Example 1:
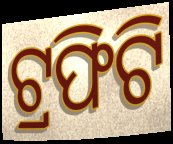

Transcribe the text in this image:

ଟ୍ରଫିଟି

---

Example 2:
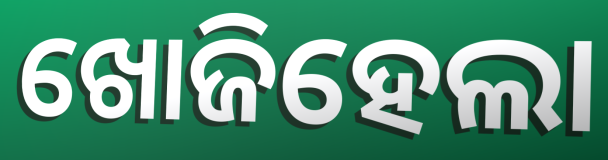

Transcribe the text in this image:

ଖୋଜିହେଲା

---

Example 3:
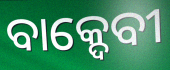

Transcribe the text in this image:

ବାକ୍ଦେବୀ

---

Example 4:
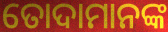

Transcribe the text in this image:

ତୋଦାମାନଙ୍କ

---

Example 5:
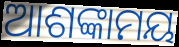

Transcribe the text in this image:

ଆଶଙ୍କାମୟ